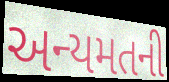
અન્યમતની